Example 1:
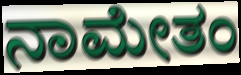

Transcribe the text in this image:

ನಾಮೇತಂ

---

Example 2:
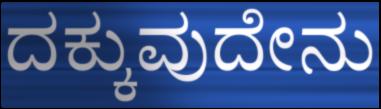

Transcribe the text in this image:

ದಕ್ಕುವುದೇನು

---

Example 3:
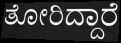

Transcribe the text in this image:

ತೋರಿದ್ದಾರೆ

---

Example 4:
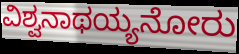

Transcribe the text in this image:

ವಿಶ್ವನಾಥಯ್ಯನೋರು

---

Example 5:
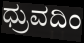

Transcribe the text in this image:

ಧ್ರುವದಿಂ